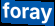
foray